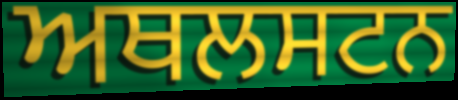
ਅਥਲਸਟਨ